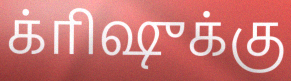
க்ரிஷுக்கு